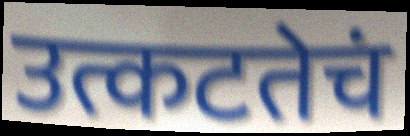
उत्कटतेचं